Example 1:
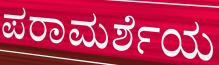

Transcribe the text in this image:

ಪರಾಮರ್ಶೆಯ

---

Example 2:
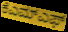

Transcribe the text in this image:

ಕೆಎಮ್ಎಫ್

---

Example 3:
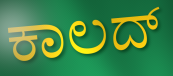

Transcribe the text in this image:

ಕಾಲದ್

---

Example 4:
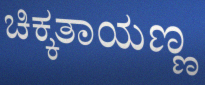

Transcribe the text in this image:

ಚಿಕ್ಕತಾಯಣ್ಣ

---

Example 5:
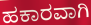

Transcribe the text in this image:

ಹಕಾರವಾಗಿ